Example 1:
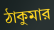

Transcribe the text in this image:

ঠাকুমার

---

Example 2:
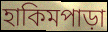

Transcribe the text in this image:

হাকিমপাড়া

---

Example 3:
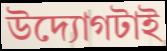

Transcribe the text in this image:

উদ্যোগটাই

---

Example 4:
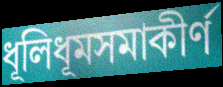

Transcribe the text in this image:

ধূলিধূমসমাকীর্ণ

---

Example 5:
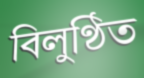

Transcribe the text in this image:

বিলুণ্ঠিত